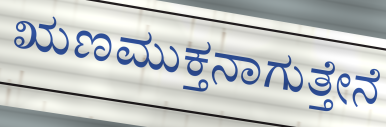
ಋಣಮುಕ್ತನಾಗುತ್ತೇನೆ